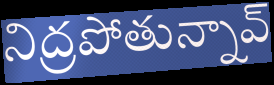
నిద్రపోతున్నావ్